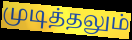
முடித்தலும்